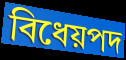
বিধেয়পদ